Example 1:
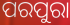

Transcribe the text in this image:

ପରପୁରା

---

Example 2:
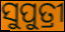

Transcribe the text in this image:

ସୁପୁତ୍ରୀ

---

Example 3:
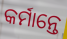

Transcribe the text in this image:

କର୍ମାନ୍ତେ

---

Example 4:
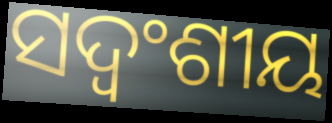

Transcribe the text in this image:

ସଦ୍ବଂଶୀୟ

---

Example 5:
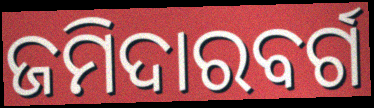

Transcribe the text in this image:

ଜମିଦାରବର୍ଗ